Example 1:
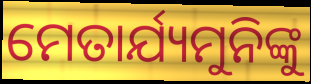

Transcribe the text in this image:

ମେତାର୍ଯ୍ୟମୁନିଙ୍କୁ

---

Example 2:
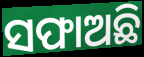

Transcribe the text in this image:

ସଫାଅଛି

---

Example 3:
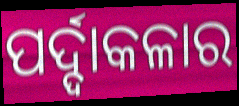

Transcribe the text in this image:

ପର୍ଦ୍ଦାକଳାର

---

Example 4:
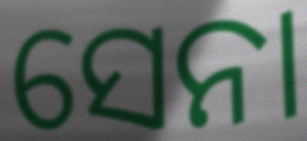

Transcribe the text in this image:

ସେନା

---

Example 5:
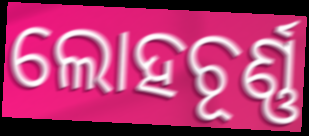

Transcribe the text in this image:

ଲୋହଚୂର୍ଣ୍ଣ